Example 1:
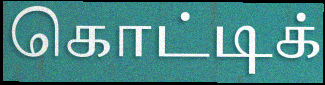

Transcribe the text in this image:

கொட்டிக்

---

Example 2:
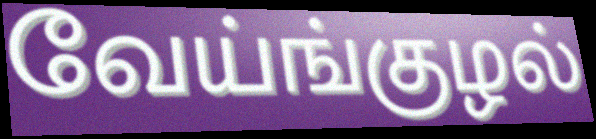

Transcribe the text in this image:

வேய்ங்குழல்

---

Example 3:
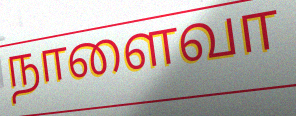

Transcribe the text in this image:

நாளைவா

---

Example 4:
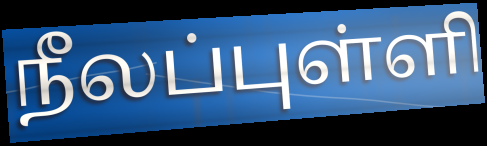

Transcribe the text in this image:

நீலப்புள்ளி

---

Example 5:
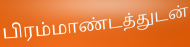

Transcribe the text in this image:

பிரம்மாண்டத்துடன்